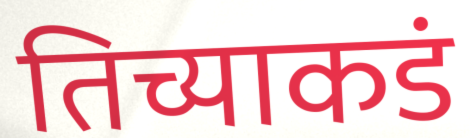
तिच्याकडं